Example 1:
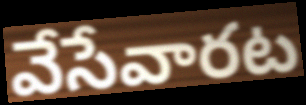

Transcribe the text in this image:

వేసేవారట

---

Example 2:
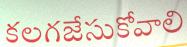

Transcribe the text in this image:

కలగజేసుకోవాలి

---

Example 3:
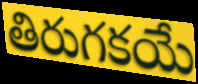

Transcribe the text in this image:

తిరుగకయే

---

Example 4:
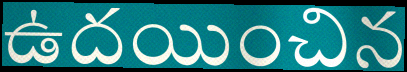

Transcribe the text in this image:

ఉదయించిన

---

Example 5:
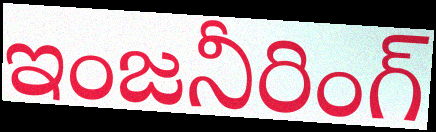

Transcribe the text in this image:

ఇంజనీరింగ్